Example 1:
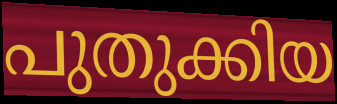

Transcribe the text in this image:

പുതുക്കിയ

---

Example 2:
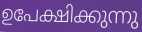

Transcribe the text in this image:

ഉപേക്ഷിക്കുന്നു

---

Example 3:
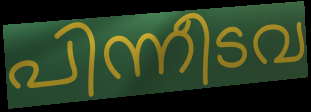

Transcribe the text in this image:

പിന്നീടവ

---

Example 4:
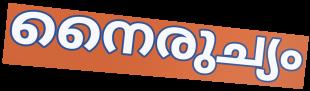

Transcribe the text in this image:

നൈരുച്യം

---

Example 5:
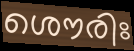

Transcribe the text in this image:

ശൌരിഃ